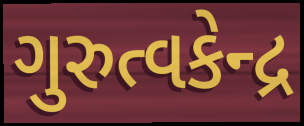
ગુરુત્વકેન્દ્ર